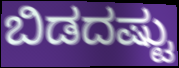
ಬಿಡದಷ್ಟು